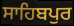
ਸਾਹਿਬਪੁਰ